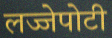
लज्जेपोटी